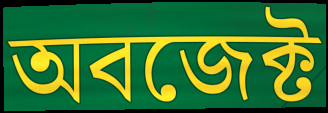
অবজেক্ট